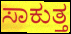
ಸಾಕುತ್ತ